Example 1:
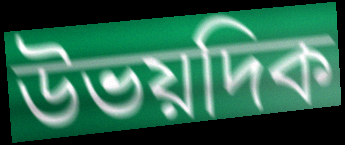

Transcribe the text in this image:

উভয়দিক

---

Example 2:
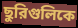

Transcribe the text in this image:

ছুরিগুলিকে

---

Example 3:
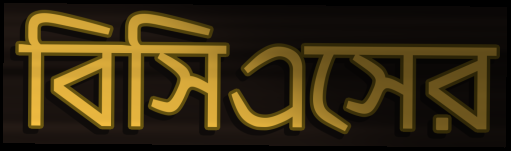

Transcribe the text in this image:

বিসিএসের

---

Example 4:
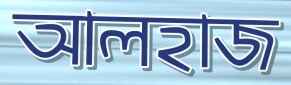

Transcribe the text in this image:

আলহাজ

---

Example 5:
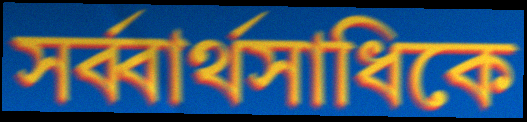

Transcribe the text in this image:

সর্ব্বার্থসাধিকে